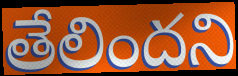
తేలిందని